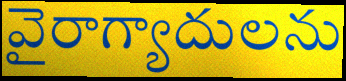
వైరాగ్యాదులను